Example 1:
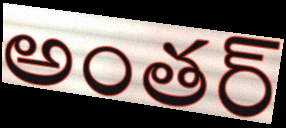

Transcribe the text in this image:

అంతర్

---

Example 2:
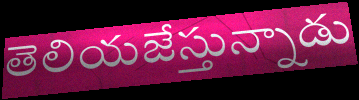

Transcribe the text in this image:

తెలియజేస్తున్నాడు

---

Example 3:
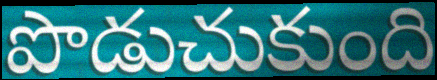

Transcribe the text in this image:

పొడుచుకుంది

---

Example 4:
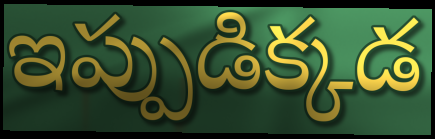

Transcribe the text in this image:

ఇప్పుడిక్కడ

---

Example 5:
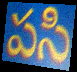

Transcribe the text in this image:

పసి